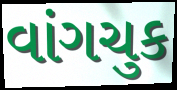
વાંગચુક